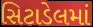
સિટાડેલમાં